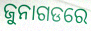
ଜୁନାଗଡରେ